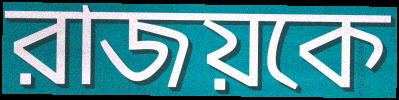
রাজয়কে